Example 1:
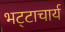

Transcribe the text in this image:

भट्‍टाचार्य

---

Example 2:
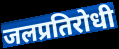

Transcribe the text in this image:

जलप्रतिरोधी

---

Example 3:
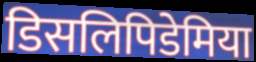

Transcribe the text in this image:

डिसलिपिडेमिया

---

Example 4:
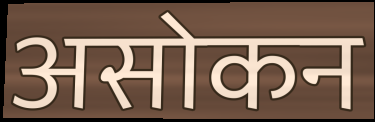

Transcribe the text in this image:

असोकन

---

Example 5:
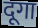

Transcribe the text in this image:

दूगा